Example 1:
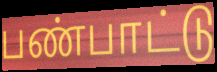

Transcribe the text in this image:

பண்பாட்டு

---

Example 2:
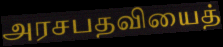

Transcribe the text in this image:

அரசபதவியைத்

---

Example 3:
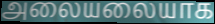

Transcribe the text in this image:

அலையலையாக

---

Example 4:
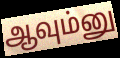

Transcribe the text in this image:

ஆவும்னு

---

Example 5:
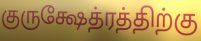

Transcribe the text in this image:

குருக்ஷேத்ரத்திற்கு